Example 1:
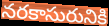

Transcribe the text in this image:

నరకాసురునికి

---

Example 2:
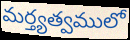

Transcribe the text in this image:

మర్త్యత్వములో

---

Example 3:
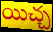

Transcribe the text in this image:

యిచ్చ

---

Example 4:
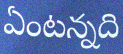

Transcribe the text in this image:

ఏంటన్నది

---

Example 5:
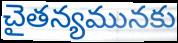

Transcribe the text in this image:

చైతన్యమునకు